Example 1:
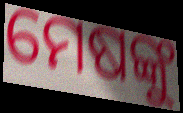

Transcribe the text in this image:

ମେଷଙ୍କୁ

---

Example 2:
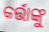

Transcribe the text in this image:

କର୍ତ୍ତାଙ୍କୁ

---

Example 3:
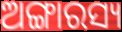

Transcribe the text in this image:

ଅଙ୍ଗାରସ୍ୟ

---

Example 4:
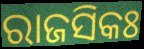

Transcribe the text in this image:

ରାଜସିକଃ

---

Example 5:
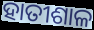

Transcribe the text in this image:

ହାତୀଶାଳ